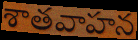
శాతవాహన